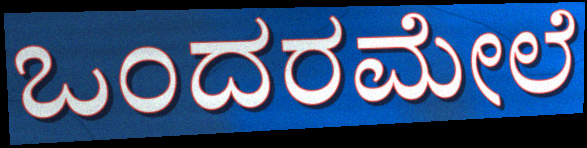
ಒಂದರಮೇಲೆ